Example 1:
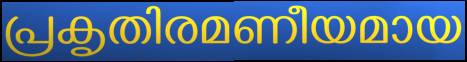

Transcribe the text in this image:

പ്രകൃതിരമണീയമായ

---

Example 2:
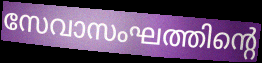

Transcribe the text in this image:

സേവാസംഘത്തിന്റെ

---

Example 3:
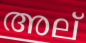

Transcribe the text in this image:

അല്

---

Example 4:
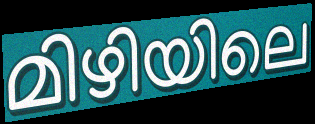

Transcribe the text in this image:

മിഴിയിലെ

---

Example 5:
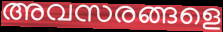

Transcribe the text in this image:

അവസരങ്ങളെ